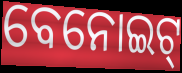
ବେନୋଇଟ୍